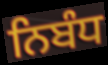
ਨਿਬੰਧ